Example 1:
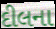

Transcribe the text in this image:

દીલના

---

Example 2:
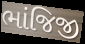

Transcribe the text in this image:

ભાંજિજી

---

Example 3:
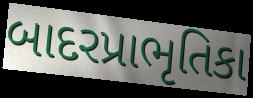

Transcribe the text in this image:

બાદરપ્રાભૃતિકા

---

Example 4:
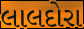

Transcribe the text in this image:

લાલદોરા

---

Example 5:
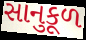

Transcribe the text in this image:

સાનુકૂળ